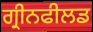
ਗ੍ਰੀਨਫੀਲਡ